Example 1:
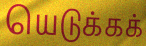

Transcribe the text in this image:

யெடுக்கக்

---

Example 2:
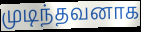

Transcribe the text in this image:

முடிந்தவனாக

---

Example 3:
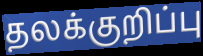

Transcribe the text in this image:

தலக்குறிப்பு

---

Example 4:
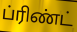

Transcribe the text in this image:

ப்ரிண்ட்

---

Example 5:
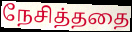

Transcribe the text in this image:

நேசித்ததை